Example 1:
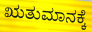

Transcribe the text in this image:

ಋತುಮಾನಕ್ಕೆ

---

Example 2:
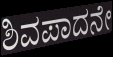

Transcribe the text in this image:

ಶಿವಪಾದನೇ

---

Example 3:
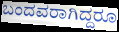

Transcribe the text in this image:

ಬಂದವರಾಗಿದ್ದರೂ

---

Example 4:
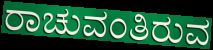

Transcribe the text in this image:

ರಾಚುವಂತಿರುವ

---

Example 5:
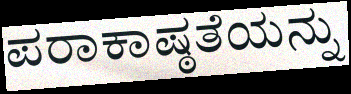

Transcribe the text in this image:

ಪರಾಕಾಷ್ಠತೆಯನ್ನು